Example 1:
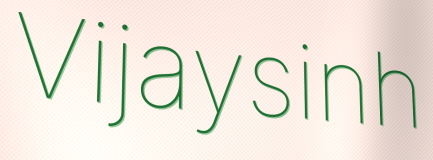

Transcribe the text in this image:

Vijaysinh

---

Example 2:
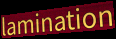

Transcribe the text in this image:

lamination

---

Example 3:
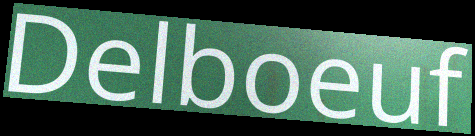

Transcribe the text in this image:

Delboeuf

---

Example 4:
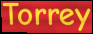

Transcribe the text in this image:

Torrey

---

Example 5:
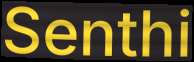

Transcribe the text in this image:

Senthi